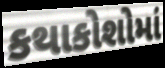
કથાકોશોમાં